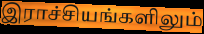
இராச்சியங்களிலும்